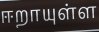
ஈறாயுள்ள